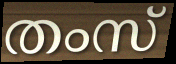
തംസ്